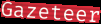
Gazeteer